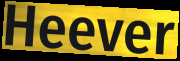
Heever